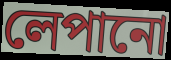
লেপানো